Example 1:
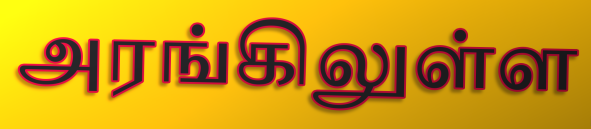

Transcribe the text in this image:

அரங்கிலுள்ள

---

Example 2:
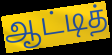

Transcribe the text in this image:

ஆட்டித்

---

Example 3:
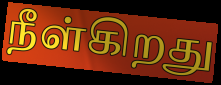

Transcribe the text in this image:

நீள்கிறது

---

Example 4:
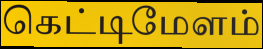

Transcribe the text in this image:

கெட்டிமேளம்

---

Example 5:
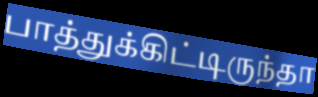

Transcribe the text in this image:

பாத்துக்கிட்டிருந்தா